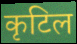
कृटिल